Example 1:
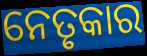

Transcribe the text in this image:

ନେତୃକାର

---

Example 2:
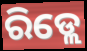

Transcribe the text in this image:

ରିଡ୍ଲେ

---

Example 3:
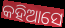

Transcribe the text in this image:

କହିଆସେ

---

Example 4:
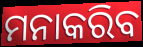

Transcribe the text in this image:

ମନାକରିବ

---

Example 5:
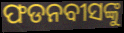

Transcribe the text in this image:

ଫଡନବୀସଙ୍କୁ